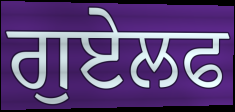
ਗੁਏਲਫ